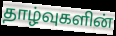
தாழ்வுகளின்